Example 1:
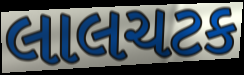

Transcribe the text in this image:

લાલચટક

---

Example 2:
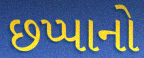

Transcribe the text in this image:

છપ્પાનો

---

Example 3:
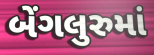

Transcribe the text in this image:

બેંગલુરુમાં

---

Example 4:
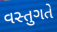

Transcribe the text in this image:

વસ્તુગતે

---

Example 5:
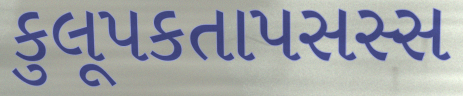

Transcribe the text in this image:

કુલૂપકતાપસસ્સ